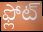
ఫ్లోట్